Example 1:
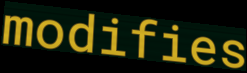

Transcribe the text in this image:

modifies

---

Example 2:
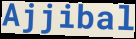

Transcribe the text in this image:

Ajjibal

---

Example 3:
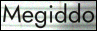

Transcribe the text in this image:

Megiddo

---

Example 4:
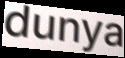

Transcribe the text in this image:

dunya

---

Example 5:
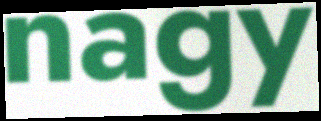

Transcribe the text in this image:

nagy